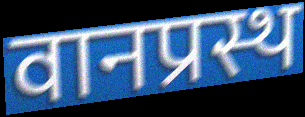
वानप्रस्थ